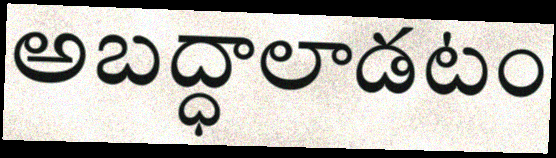
అబద్ధాలాడటం